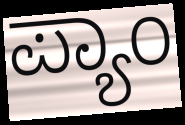
ಪ್ಯಾಂ